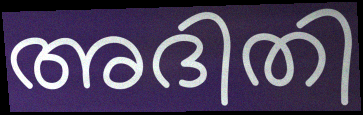
അദിതി